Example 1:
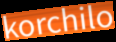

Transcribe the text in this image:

korchilo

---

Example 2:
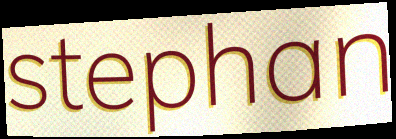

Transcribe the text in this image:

stephan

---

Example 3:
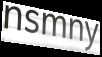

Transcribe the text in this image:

nsmny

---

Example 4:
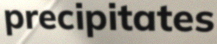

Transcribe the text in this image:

precipitates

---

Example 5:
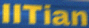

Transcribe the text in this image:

IITian